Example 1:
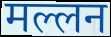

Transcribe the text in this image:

मल्लन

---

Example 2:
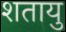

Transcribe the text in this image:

शतायु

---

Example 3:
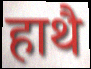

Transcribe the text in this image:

हाथै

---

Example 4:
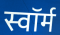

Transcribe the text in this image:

स्वॉर्म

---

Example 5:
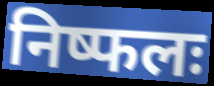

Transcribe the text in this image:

निष्फलः